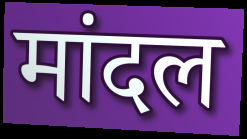
मांदल